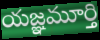
యజ్ఞమూర్తి